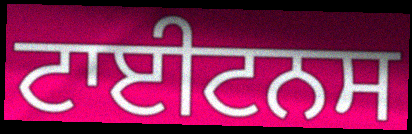
ਟਾਈਟਨਸ